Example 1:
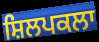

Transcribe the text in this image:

ਸ਼ਿਲਪਕਲਾ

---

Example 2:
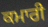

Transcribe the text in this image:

ਕਮਾਰੀ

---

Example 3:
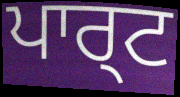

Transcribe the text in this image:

ਪਾਰ੍ਟ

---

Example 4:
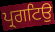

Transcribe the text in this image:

ਪ੍ਰਗਟਿਉ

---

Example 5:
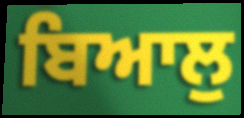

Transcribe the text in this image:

ਬਿਆਲੁ